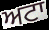
ਅਟਾ